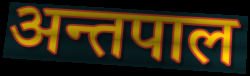
अन्तपाल